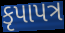
કૃપાપત્ર